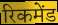
रिकमेंड